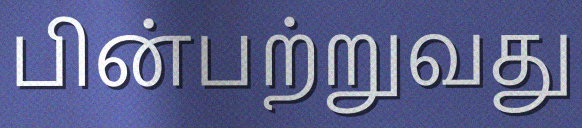
பின்பற்றுவது